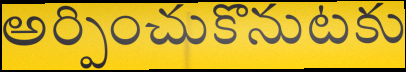
అర్పించుకొనుటకు